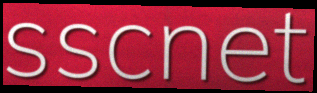
sscnet